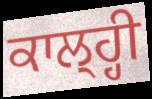
ਕਾਲ੍ਹ੍ਹੀ